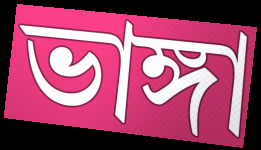
ভাঙ্গা